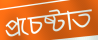
প্ৰচেষ্টাত